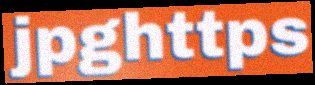
jpghttps